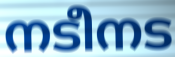
നടീനട